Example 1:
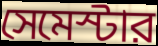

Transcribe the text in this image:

সেমেস্টার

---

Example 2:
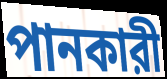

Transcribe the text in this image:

পানকারী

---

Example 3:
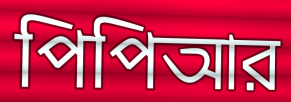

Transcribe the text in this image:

পিপিআর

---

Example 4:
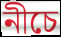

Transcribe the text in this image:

নীচে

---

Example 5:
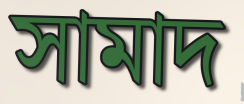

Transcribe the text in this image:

সামাদ